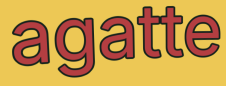
agatte